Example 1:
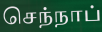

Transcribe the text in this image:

செந்நாப்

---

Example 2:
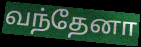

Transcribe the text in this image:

வந்தேனா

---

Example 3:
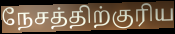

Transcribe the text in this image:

நேசத்திற்குரிய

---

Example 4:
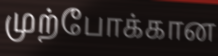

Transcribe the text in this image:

முற்போக்கான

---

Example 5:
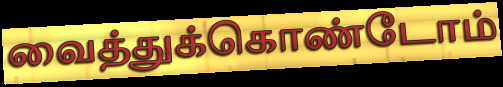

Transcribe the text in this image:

வைத்துக்கொண்டோம்